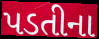
પડતીના